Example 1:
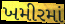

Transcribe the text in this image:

ખમીરમાં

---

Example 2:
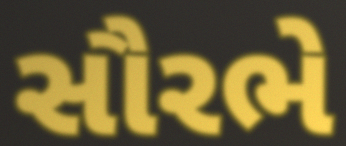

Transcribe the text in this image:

સૌરભે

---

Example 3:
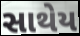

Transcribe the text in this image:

સાથેય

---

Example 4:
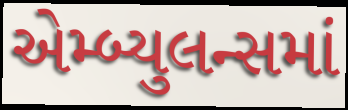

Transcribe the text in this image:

એમ્બ્યુલન્સમાં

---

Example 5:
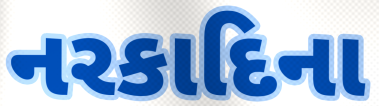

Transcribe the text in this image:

નરકાદિના